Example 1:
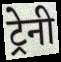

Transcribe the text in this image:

ट्रेनी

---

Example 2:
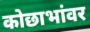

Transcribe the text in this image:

कोछाभांवर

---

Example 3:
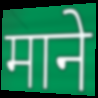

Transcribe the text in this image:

माने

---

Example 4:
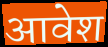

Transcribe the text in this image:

आवेश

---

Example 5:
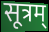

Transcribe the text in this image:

सूत्रम्